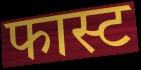
फास्ट